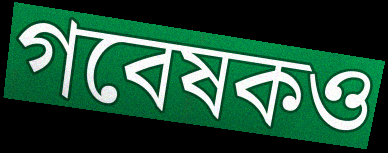
গবেষকও